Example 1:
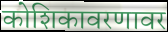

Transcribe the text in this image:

कोशिकावरणावर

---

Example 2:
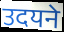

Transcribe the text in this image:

उदयने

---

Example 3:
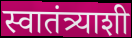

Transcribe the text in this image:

स्वातंत्र्याशी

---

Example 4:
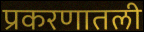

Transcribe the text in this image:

प्रकरणातली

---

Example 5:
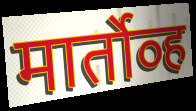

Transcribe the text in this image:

मार्तोव्ह